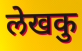
लेखकु